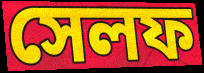
সেলফ